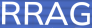
RRAG